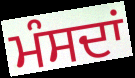
ਮੰਸਦਾਂ